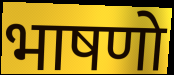
भाषणो